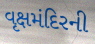
વૃક્ષમંદિરની